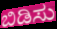
ಬಿಡಿಸು